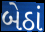
બેઠાં